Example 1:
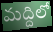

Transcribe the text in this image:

మద్దిలో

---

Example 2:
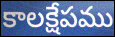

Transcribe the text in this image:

కాలక్షేపము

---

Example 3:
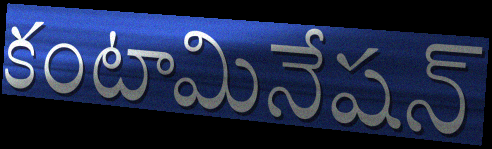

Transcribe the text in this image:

కంటామినేషన్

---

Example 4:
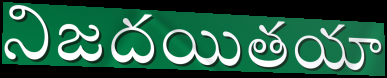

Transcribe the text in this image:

నిజదయితయా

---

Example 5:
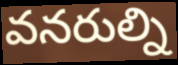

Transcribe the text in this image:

వనరుల్ని